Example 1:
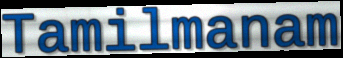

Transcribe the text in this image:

Tamilmanam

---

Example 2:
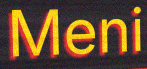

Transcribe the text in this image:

Meni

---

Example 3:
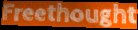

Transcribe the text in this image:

Freethought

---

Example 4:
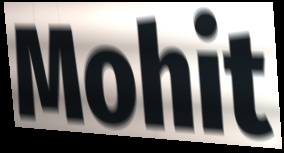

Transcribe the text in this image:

Mohit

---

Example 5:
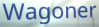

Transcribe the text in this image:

Wagoner